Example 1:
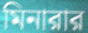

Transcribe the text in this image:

মিনারার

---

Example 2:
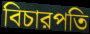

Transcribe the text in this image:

বিচারপতি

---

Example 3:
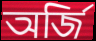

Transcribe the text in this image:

অর্জি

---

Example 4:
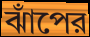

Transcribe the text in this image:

ঝাঁপের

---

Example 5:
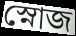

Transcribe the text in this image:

স্নোজ